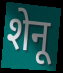
शेनू